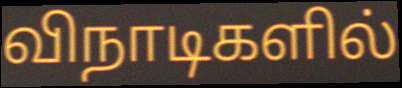
விநாடிகளில்